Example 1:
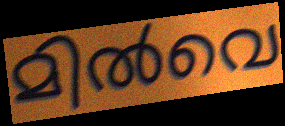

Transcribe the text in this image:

മിൽവെ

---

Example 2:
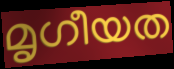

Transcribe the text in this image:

മൃഗീയത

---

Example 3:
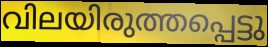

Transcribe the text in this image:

വിലയിരുത്തപ്പെട്ടു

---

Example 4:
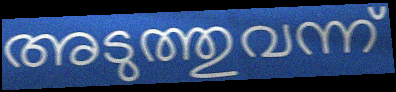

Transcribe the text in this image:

അടുത്തുവന്ന്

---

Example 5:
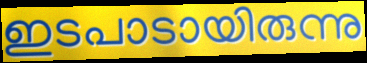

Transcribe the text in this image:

ഇടപാടായിരുന്നു